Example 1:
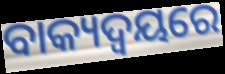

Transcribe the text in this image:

ବାକ୍ୟଦ୍ଵୟରେ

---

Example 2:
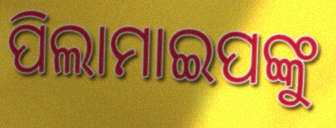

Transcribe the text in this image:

ପିଲାମାଇପଙ୍କୁ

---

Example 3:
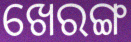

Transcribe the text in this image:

ଖେରଙ୍ଗ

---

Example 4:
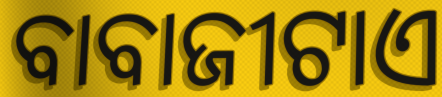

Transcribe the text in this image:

ବାବାଜୀଟାଏ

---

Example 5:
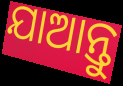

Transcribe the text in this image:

ଯାଆନ୍ତୁ